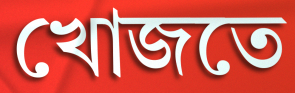
খোজতে